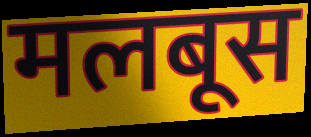
मलबूस